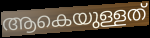
ആകെയുള്ളത്